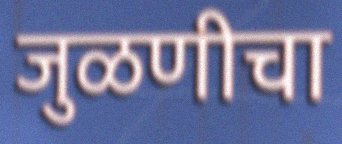
जुळणीचा